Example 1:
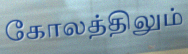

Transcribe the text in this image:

கோலத்திலும்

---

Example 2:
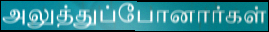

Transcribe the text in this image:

அலுத்துப்போனார்கள்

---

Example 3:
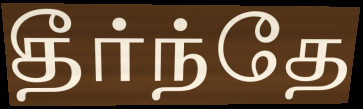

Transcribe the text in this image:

தீர்ந்தே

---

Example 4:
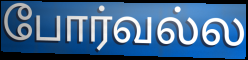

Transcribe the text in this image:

போர்வல்ல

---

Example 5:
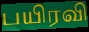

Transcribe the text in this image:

பயிரவி